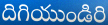
దిగియుండిరి